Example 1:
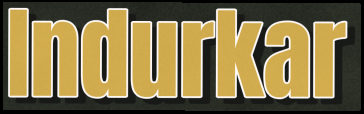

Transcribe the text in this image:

Indurkar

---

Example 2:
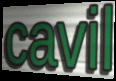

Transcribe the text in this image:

cavil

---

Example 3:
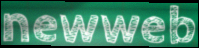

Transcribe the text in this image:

newweb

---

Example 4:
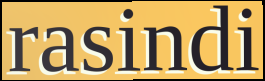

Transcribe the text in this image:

rasindi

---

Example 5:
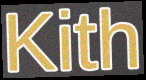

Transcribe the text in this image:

Kith